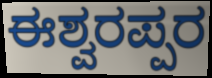
ಈಶ್ವರಪ್ಪರ